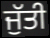
ਜੁੱਤੀ